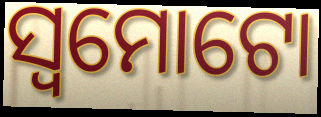
ସ୍ୱମୋଟୋ